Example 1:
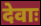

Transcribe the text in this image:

देवाः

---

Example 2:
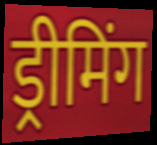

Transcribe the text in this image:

ड्रीमिंग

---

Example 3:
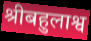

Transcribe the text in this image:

श्रीबहुलाश्व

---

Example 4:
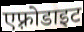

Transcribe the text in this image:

एफ़्रोडाइट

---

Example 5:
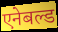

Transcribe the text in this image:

एनेबल्ड